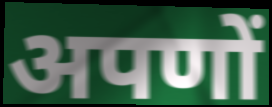
अपणों